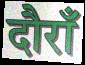
दौराँ